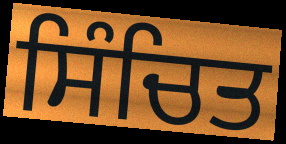
ਸਿੰਚਿਤ